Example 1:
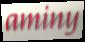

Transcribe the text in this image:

aminy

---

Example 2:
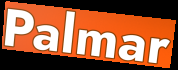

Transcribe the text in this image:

Palmar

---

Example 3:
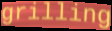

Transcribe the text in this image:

grilling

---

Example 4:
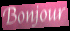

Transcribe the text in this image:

Bonjour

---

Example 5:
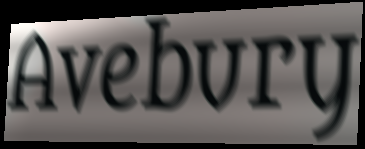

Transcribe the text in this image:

Avebury